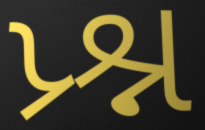
પ્ર્શ્ન